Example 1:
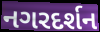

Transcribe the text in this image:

નગરદર્શન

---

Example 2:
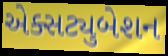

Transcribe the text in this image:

એક્સટ્યુબેશન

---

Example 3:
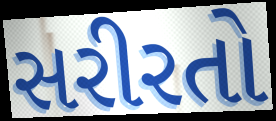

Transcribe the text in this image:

સરીરતો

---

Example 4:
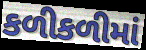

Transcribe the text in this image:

કળીકળીમાં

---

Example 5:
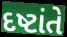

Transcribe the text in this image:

દષ્ટાંતે